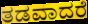
ತಡವಾದರೆ